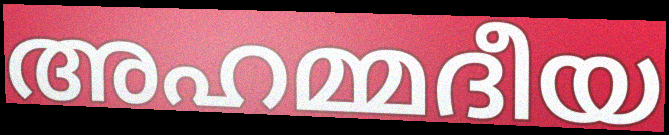
അഹമ്മദീയ